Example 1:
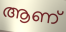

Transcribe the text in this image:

ആണ്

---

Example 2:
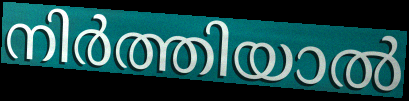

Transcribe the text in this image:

നിർത്തിയാൽ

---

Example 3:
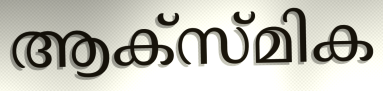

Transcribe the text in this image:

ആക്സ്മിക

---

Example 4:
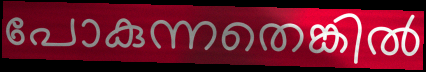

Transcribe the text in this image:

പോകുന്നതെങ്കിൽ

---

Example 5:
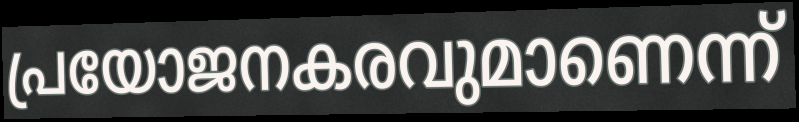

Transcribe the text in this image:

പ്രയോജനകരവുമാണെന്ന്